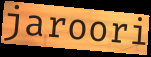
jaroori